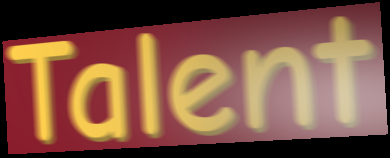
Talent